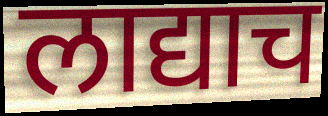
लाद्याच